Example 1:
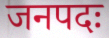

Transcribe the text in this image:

जनपदः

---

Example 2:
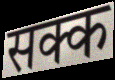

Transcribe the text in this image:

सक्क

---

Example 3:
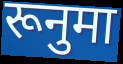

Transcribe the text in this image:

रूनुमा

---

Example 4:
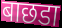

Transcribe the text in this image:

बाछडा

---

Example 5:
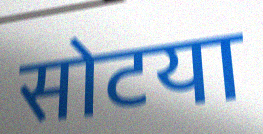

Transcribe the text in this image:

सोटया